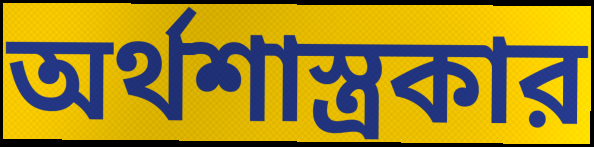
অর্থশাস্ত্রকার